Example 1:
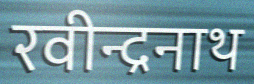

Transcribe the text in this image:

रवीन्‍द्रनाथ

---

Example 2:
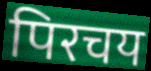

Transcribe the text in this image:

पिरचय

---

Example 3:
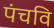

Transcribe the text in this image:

पंचवि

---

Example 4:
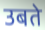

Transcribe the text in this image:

उबते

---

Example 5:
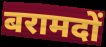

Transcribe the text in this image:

बरामदों